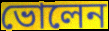
ভোলেন